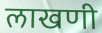
लाखणी